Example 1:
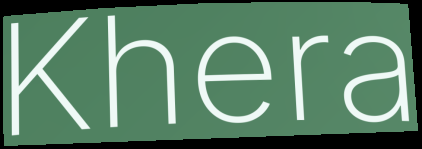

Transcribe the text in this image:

Khera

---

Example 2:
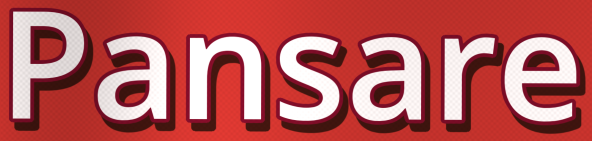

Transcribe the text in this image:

Pansare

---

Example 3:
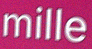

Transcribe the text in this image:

mille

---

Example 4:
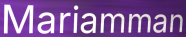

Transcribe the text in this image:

Mariamman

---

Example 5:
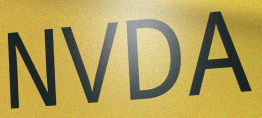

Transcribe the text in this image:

NVDA